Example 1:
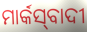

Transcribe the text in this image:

ମାର୍କସ୍‍ବାଦୀ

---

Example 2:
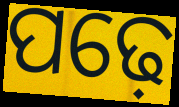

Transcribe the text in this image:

ପଢ଼େ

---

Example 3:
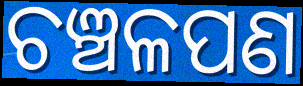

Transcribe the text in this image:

ଚଞ୍ଚଳପଣ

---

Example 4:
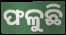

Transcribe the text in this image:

ଫଳୁଛି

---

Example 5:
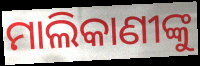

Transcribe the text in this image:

ମାଲିକାଣୀଙ୍କୁ